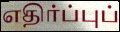
எதிர்ப்புப்